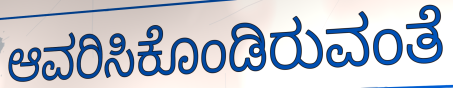
ಆವರಿಸಿಕೊಂಡಿರುವಂತೆ